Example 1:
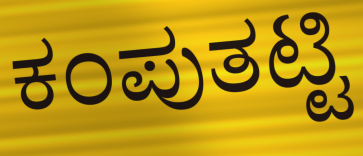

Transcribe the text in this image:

ಕಂಪುತಟ್ಟಿ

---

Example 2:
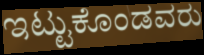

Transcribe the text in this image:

ಇಟ್ಟುಕೊಂಡವರು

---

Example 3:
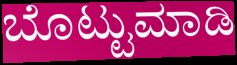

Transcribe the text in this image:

ಬೊಟ್ಟುಮಾಡಿ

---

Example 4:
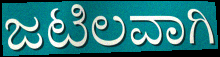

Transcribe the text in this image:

ಜಟಿಲವಾಗಿ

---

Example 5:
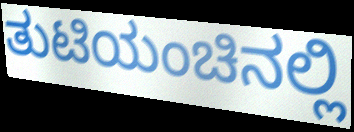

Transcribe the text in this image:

ತುಟಿಯಂಚಿನಲ್ಲಿ